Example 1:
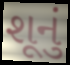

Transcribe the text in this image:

શૂનું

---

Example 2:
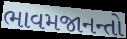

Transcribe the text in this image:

ભાવમજાનન્તો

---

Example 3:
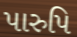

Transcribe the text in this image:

પારુપિ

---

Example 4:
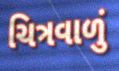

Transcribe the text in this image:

ચિત્રવાળું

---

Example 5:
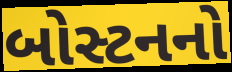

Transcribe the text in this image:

બોસ્ટનનો